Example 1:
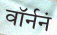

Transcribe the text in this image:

वॉर्ननं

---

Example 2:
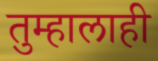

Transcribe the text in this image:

तुम्हालाही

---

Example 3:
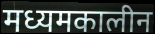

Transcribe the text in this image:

मध्यमकालीन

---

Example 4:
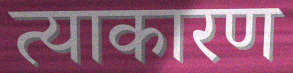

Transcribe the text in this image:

त्याकारण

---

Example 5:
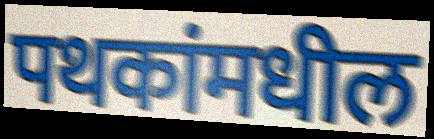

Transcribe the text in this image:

पथकांमधील